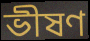
ভীষণ